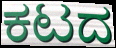
ಕಟದ